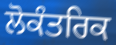
ਲੋਕੰਤਰਿਕ